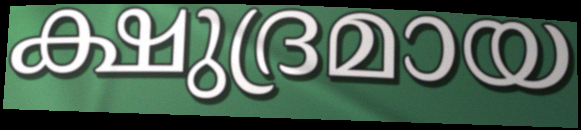
ക്ഷുദ്രമായ